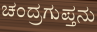
ಚಂದ್ರಗುಪ್ತನು